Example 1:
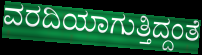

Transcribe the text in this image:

ವರದಿಯಾಗುತ್ತಿದ್ದಂತೆ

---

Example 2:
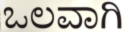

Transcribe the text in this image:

ಒಲವಾಗಿ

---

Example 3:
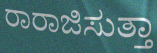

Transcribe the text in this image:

ರಾರಾಜಿಸುತ್ತಾ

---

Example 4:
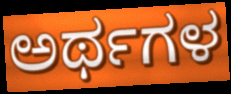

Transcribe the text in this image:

ಅರ್ಥಗಳ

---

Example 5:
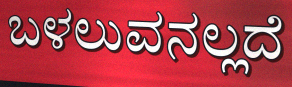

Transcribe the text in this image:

ಬಳಲುವನಲ್ಲದೆ